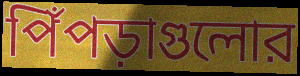
পিঁপড়াগুলোর